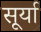
सूर्या